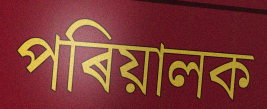
পৰিয়ালক